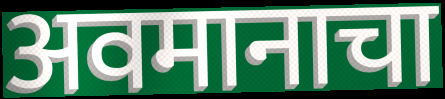
अवमानाचा